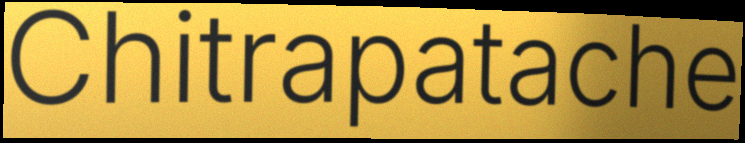
Chitrapatache